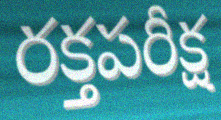
రక్తపరీక్ష